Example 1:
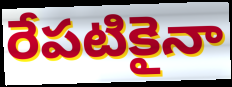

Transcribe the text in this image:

రేపటికైనా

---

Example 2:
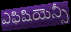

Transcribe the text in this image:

ఎఫిషియెన్సీ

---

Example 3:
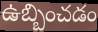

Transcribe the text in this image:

ఉబ్బించడం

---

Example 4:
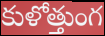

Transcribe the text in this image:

కుళోత్తుంగ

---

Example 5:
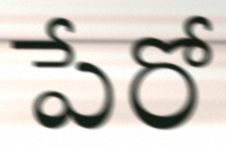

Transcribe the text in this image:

పేరో